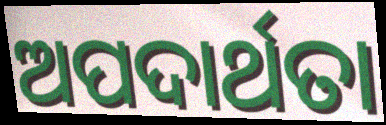
ଅପଦାର୍ଥତା